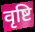
वृष्टि